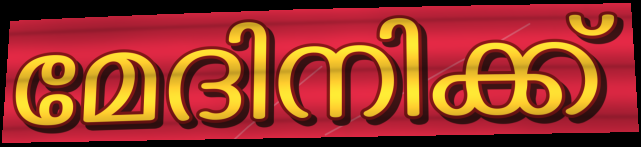
മേദിനിക്ക്